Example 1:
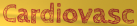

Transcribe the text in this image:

Cardiovasc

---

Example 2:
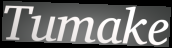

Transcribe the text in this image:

Tumake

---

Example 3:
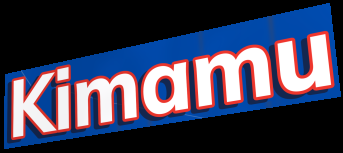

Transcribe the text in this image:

Kimamu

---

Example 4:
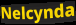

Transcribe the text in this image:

Nelcynda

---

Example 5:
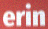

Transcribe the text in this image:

erin